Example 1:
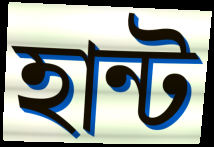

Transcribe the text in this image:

হান্ট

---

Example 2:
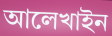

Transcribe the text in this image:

আলেখাইন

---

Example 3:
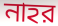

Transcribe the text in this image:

নাহর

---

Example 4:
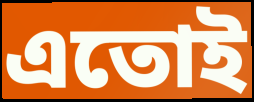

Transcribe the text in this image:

এতোই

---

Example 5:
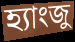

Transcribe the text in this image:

হ্যাংজু